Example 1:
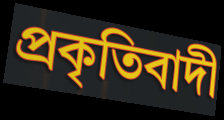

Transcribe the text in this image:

প্ৰকৃতিবাদী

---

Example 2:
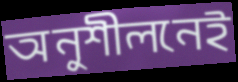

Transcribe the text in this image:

অনুশীলনেই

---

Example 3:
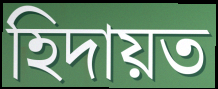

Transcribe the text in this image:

হিদায়ত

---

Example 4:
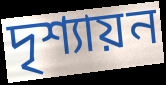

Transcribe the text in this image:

দৃশ্যায়ন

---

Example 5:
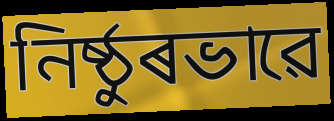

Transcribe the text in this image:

নিষ্ঠুৰভাৱে